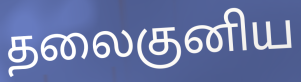
தலைகுனிய